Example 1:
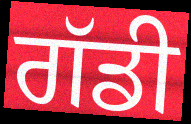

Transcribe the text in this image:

ਗੱਡੀ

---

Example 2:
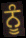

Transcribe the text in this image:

ਨੂੰ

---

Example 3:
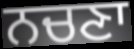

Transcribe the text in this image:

ਨਚਣਾ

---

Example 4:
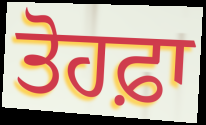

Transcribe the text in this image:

ਤੋਹਫ਼ਾ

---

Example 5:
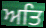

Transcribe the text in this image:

ਅਤਿ